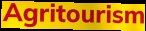
Agritourism